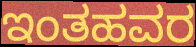
ಇಂತಹವರ